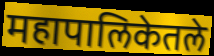
महापालिकेतले